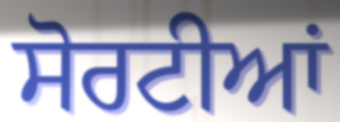
ਸੋਰਟੀਆਂ